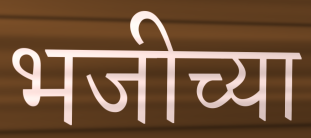
भजीच्या